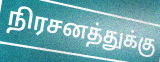
நிரசனத்துக்கு